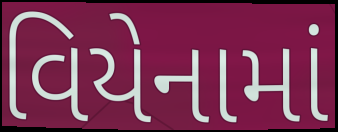
વિયેનામાં